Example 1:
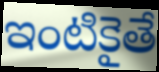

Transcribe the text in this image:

ఇంటికైతే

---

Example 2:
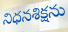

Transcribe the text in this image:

నిధనశిక్షను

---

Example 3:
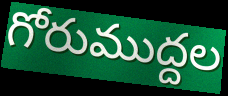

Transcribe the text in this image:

గోరుముద్దల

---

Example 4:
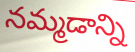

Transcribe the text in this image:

నమ్మడాన్ని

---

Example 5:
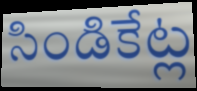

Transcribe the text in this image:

సిండికేట్ల